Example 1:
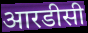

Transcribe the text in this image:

आरडीसी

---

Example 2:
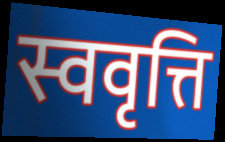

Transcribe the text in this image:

स्ववृत्ति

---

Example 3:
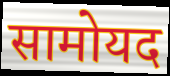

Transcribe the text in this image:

सामोयद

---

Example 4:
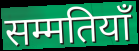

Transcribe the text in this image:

सम्मतियाँ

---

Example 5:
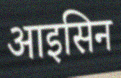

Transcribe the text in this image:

आइसिन